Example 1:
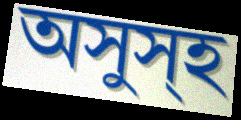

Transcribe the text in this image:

অসুস্হ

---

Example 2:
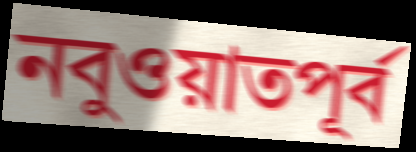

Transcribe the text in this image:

নবুওয়াতপূর্ব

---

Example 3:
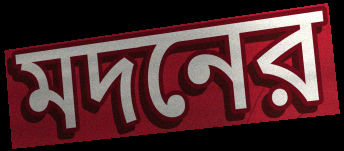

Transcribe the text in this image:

মদনের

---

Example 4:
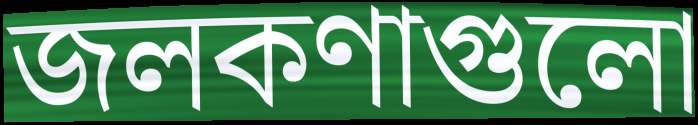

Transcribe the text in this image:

জলকণাগুলো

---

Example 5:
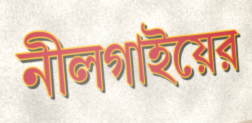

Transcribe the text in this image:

নীলগাইয়ের